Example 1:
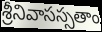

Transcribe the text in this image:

శ్రీనివాసస్సతాం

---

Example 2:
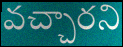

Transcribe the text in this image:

వచ్చారని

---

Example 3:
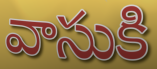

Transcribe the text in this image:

వాసుకి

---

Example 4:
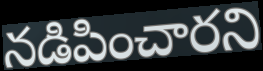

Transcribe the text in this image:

నడిపించారని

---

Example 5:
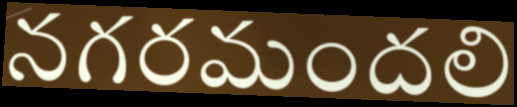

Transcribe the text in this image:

నగరమందలి